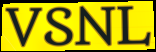
VSNL